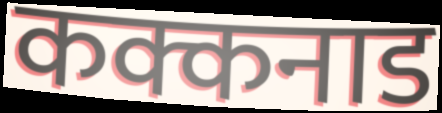
कक्कनाड